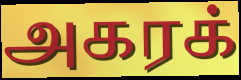
அகரக்